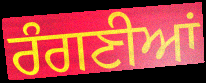
ਰੰਗਣੀਆਂ